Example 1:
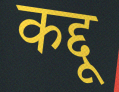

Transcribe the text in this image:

कद्दू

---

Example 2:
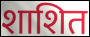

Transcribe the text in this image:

शाशित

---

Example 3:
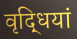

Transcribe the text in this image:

वृद्धियां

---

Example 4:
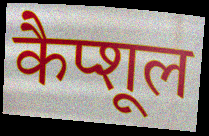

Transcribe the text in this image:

कैप्शूल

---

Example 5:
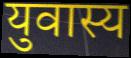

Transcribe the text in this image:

युवास्य